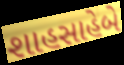
શાહસાહેબે